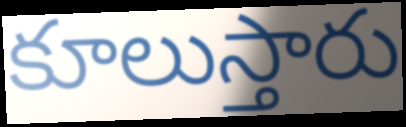
కూలుస్తారు